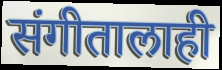
संगीतालाही